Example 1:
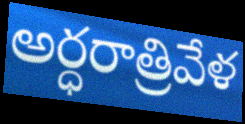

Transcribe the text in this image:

అర్ధరాత్రివేళ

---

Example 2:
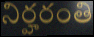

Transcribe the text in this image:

నిర్హరంతి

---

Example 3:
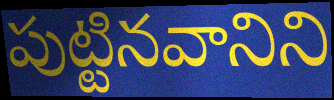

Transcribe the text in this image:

పుట్టినవానిని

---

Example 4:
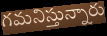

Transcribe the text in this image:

గమనిస్తున్నారు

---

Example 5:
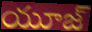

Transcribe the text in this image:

యూజ్